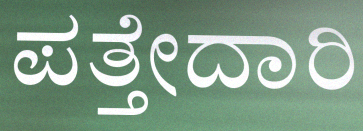
ಪತ್ತೇದಾರಿ